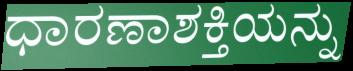
ಧಾರಣಾಶಕ್ತಿಯನ್ನು